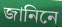
জানিনে